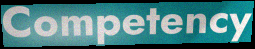
Competency